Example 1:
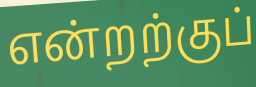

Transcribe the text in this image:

என்றற்குப்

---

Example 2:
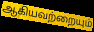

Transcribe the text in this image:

ஆகியவற்றையும்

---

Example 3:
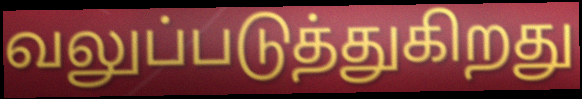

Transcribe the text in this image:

வலுப்படுத்துகிறது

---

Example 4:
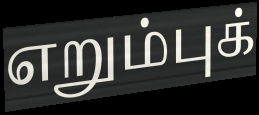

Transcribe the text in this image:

எறும்புக்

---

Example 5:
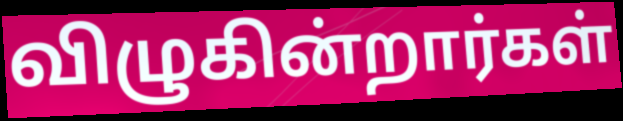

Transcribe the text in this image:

விழுகின்றார்கள்